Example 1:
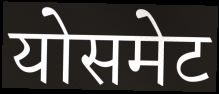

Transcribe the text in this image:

योसमेट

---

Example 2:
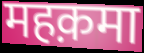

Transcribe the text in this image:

महक़मा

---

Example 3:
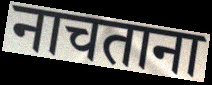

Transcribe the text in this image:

नाचताना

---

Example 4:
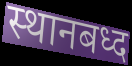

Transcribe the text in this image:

स्थानबध्द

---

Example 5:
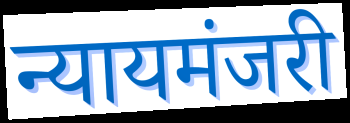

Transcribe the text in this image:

न्यायमंजरी